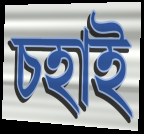
চহাই